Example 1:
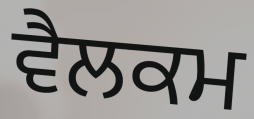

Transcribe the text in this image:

ਵੈਲਕਮ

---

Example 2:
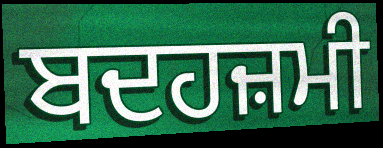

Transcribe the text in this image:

ਬਦਹਜ਼ਮੀ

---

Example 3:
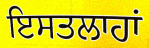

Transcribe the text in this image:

ਇਸਤਲਾਹਾਂ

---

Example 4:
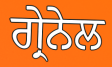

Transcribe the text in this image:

ਗ੍ਰੇਨੇਲ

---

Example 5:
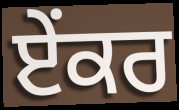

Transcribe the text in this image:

ਏੰਕਰ